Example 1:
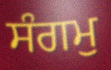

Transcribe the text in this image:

ਸੰਗਮੁ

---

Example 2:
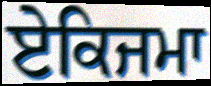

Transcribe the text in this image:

ਏਕਿਜਮਾ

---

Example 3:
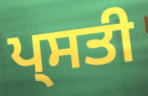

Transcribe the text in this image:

ਪ੍ਸਤੀ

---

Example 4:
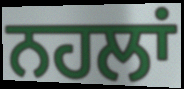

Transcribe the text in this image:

ਨਹਲਾਂ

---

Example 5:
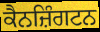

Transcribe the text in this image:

ਕੈਨਜ਼ਿੰਗਟਨ